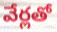
వేర్లతో